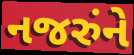
નજરુંને